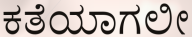
ಕತೆಯಾಗಲೀ